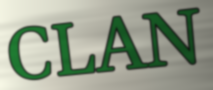
CLAN